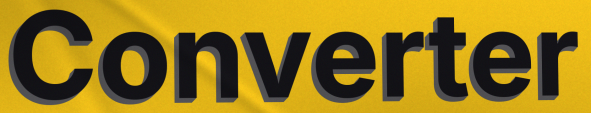
Converter